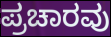
ಪ್ರಚಾರವು